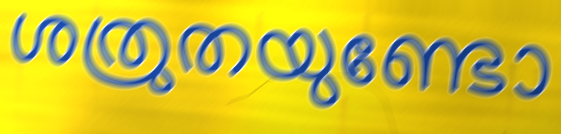
ശത്രുതയുണ്ടോ